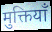
मुक्तियाँ